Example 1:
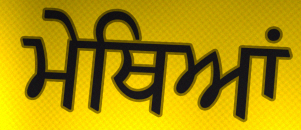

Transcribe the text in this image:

ਮੇਥਿਆਂ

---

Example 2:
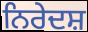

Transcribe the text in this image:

ਨਿਰੇਦਸ਼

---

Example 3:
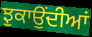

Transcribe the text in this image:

ਝੁਕਾਉਂਦੀਆਂ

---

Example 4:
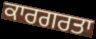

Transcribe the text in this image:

ਕਾਰਗਰਤਾ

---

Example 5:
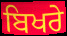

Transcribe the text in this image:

ਬਿਖਰੇ